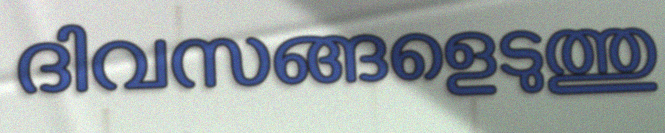
ദിവസങ്ങളെടുത്തു